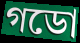
গডো